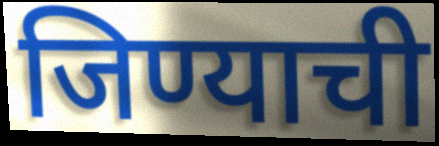
जिण्याची